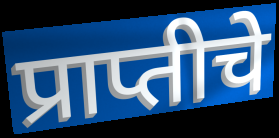
प्राप्तीचे